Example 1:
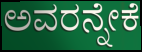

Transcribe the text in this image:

ಅವರನ್ನೇಕೆ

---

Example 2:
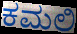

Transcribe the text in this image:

ಕಮಲಿ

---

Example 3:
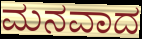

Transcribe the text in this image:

ಮನವಾದ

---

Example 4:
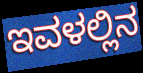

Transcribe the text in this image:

ಇವಳಲ್ಲಿನ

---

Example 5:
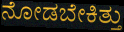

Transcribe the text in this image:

ನೋಡಬೇಕಿತ್ತು